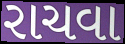
રાચવા